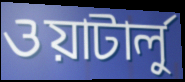
ওয়াটার্লু